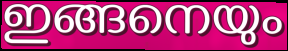
ഇങ്ങനെയും